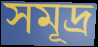
সমূদ্র